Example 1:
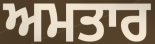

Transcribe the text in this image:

ਅਮਤਾਰ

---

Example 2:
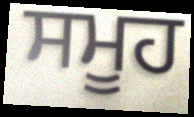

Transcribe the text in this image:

ਸਮੂਹ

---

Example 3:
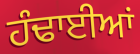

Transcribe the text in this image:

ਹੰਢਾਈਆਂ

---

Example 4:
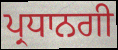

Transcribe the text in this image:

ਪ੍ਰਧਾਨਗੀ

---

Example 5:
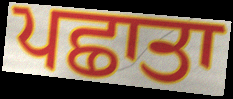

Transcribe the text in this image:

ਪਛਾਤਾ